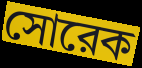
সোরেক